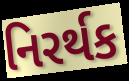
નિરર્થક